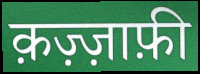
क़ज़्ज़ाफ़ी